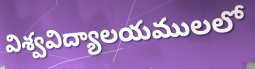
విశ్వవిద్యాలయములలో